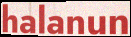
halanun